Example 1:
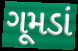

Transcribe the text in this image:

ગૂમડાં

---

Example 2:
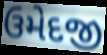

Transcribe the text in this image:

ઉમેદજી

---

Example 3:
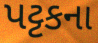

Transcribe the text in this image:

પટ્ટકના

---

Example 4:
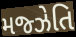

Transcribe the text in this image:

મજ્ઝેતિ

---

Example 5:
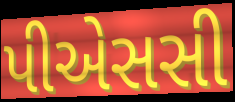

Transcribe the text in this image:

પીએસસી